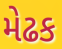
મેઢક